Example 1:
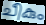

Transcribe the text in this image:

ചീകും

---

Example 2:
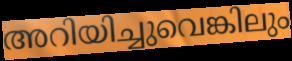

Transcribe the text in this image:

അറിയിച്ചുവെങ്കിലും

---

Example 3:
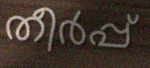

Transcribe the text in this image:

തീർപ്പ്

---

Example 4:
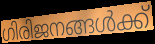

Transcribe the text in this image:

ഗിരിജനങ്ങൾക്ക്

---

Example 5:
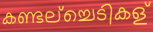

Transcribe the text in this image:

കണ്ടല്ച്ചെടികള്